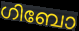
ഗിബോ